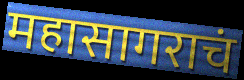
महासागराचं